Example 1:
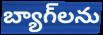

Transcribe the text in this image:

బ్యాగ్‌లను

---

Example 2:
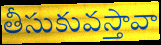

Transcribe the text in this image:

తీసుకువస్తావా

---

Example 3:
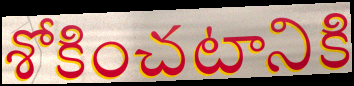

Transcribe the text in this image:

శోకించటానికి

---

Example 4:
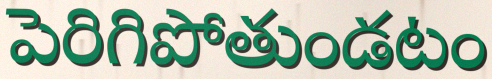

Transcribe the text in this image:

పెరిగిపోతుండటం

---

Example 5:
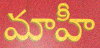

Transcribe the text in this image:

మాహీ